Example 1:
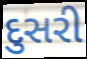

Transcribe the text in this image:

દુસરી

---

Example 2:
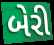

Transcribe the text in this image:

બેરી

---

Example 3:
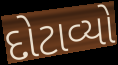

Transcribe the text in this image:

દોટાવ્યો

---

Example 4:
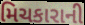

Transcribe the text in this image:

મિચકારાની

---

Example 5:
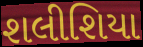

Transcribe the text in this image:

શલીશિયા